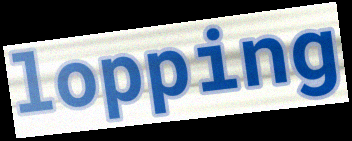
lopping